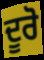
ਦੂਰੋ